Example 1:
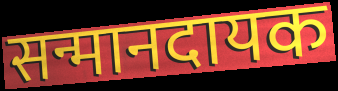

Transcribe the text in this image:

सन्मानदायक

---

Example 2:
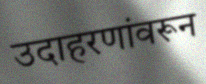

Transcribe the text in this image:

उदाहरणांवरून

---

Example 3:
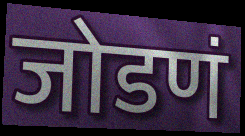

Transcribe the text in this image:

जोडणं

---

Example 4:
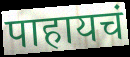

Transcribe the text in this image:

पाहायचं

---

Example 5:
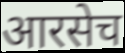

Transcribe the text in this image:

आरसेच